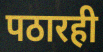
पठारही